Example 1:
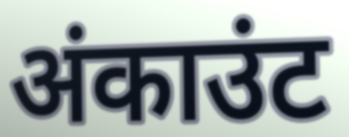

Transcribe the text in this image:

अंकाउंट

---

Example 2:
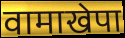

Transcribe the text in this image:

वामाखेपा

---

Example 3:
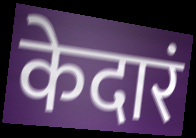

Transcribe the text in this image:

केदारं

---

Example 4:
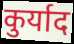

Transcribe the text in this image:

कुर्याद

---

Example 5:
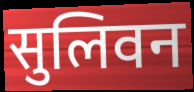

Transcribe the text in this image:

सुलिवन